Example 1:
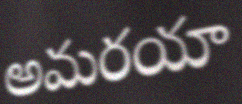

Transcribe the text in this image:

అమరయా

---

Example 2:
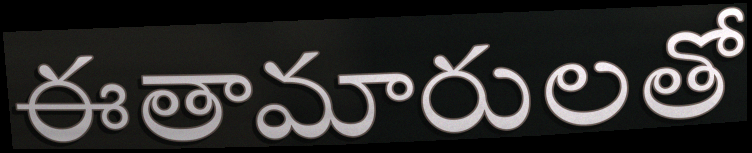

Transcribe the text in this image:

ఈతామారులతో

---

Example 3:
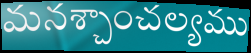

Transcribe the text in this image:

మనశ్చాంచల్యము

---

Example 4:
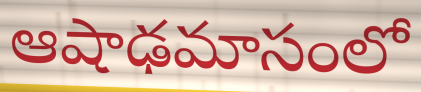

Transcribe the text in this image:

ఆషాఢమాసంలో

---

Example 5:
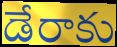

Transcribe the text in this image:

డేరాకు